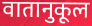
वातानुकूल